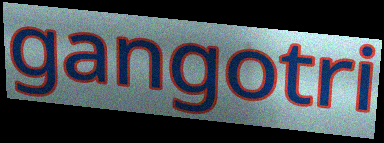
gangotri